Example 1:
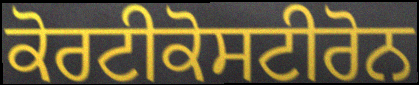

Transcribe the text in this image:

ਕੋਰਟੀਕੋਸਟੀਰੋਨ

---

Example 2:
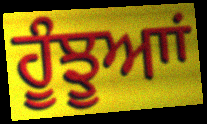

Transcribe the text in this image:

ਹੂੰਝੂਆਾਂ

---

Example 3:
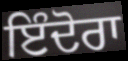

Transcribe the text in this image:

ਇੰਦੋਰਾ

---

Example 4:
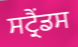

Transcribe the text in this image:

ਸਟ੍ਰੈਂਡਸ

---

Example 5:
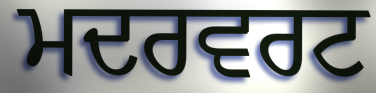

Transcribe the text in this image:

ਮਦਰਵਰਟ